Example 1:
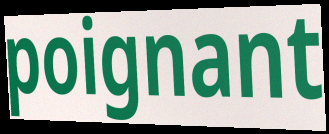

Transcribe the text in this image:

poignant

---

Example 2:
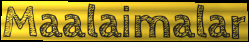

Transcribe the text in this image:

Maalaimalar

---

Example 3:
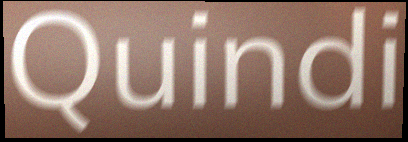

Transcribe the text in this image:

Quindi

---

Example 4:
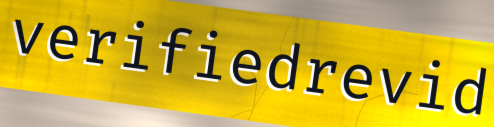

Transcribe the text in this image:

verifiedrevid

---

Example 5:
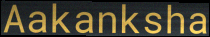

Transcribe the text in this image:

Aakanksha